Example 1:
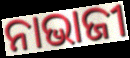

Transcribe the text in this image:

ନାଭାଜୀ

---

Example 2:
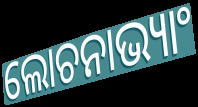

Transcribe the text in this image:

ଲୋଚନାଭ୍ୟାଂ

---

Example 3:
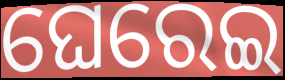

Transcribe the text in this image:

ଘେରେଇ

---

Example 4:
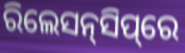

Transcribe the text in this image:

ରିଲେସନ୍‌ସିପ୍‌ରେ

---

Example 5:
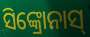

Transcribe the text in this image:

ସିଙ୍କ୍ରୋନାସ୍